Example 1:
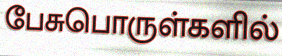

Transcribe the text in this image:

பேசுபொருள்களில்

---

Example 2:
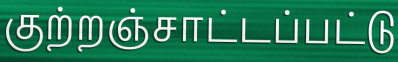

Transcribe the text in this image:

குற்றஞ்சாட்டப்பட்டு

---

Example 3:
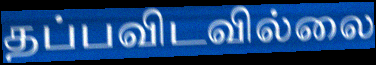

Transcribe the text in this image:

தப்பவிடவில்லை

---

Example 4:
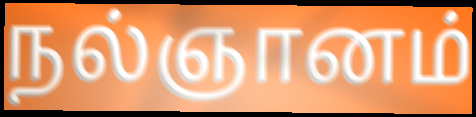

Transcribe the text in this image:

நல்ஞானம்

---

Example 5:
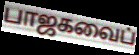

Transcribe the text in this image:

பாஜகவைப்